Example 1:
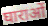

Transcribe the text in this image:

घाराओं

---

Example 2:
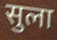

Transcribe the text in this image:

सुला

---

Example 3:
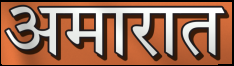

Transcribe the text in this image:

अमारात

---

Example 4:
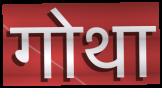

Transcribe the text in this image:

गोथा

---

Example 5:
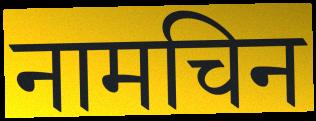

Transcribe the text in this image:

नामचिन